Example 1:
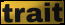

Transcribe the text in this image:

trait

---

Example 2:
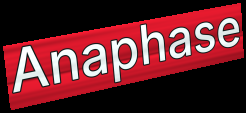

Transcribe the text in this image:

Anaphase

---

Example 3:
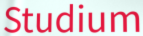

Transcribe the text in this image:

Studium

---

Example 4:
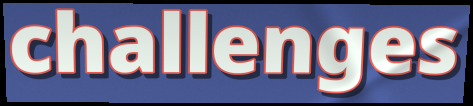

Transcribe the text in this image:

challenges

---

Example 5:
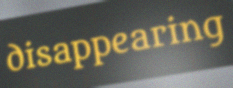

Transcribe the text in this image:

disappearing